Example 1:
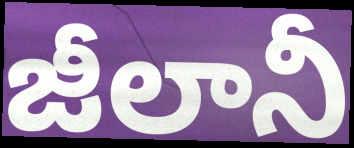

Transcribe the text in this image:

జీలానీ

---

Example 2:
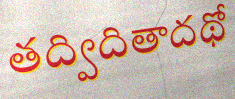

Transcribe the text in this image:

తద్విదితాదథో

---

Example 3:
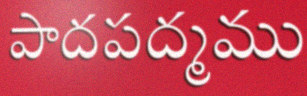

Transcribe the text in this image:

పాదపద్మము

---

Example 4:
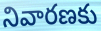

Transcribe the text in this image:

నివారణకు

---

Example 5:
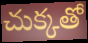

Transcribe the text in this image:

చుక్కతో